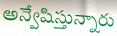
అన్వేషిస్తున్నారు